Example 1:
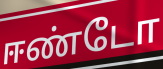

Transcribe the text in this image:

ஈண்டோ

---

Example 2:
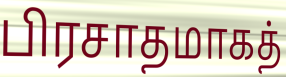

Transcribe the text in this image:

பிரசாதமாகத்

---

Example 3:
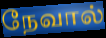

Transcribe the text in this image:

நேவால்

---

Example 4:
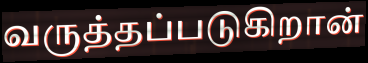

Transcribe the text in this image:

வருத்தப்படுகிறான்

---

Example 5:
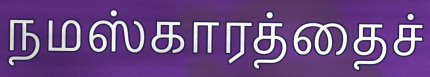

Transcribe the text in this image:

நமஸ்காரத்தைச்